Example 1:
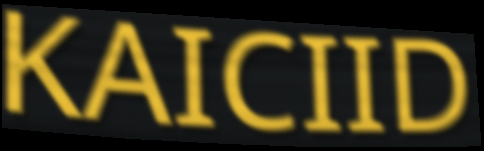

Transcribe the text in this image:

KAICIID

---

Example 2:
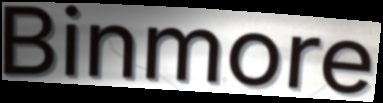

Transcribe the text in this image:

Binmore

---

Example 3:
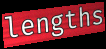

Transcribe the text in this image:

lengths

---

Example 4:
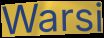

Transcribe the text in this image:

Warsi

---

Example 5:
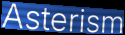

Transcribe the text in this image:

Asterism